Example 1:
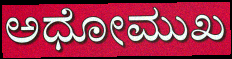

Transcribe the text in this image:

ಅಧೋಮುಖ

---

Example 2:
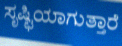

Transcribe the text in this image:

ಸೃಷ್ಟಿಯಾಗುತ್ತಾರೆ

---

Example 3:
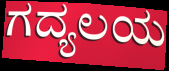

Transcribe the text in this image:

ಗದ್ಯಲಯ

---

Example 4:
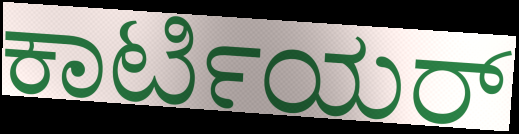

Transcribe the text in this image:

ಕಾರ್ಟಿಯರ್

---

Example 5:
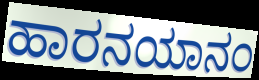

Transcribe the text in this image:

ಹಾರನಯಾನಂ